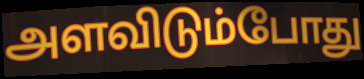
அளவிடும்போது